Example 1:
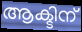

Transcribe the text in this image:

ആക്ടിന്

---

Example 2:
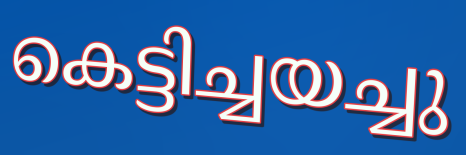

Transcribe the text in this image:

കെട്ടിച്ചയച്ചു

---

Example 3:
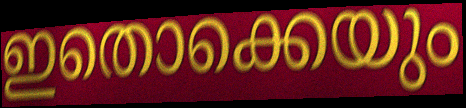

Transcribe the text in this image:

ഇതൊക്കെയും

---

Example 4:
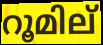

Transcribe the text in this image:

റൂമില്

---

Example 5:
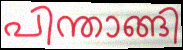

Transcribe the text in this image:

പിന്താങ്ങി